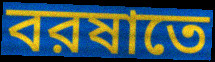
বরষাতে